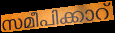
സമീപിക്കാറ്